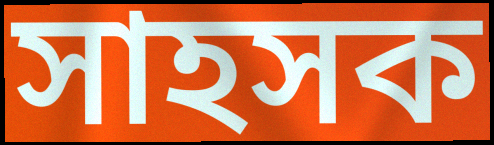
সাহসক